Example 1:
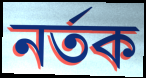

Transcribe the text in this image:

নৰ্তক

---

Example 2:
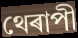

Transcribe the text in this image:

থেৰাপী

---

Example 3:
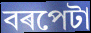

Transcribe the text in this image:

বৰপেটা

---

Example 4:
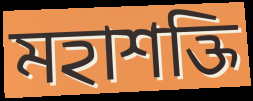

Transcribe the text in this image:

মহাশক্তি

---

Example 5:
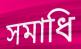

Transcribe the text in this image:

সমাধি